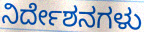
ನಿರ್ದೇಶನಗಳು